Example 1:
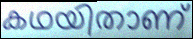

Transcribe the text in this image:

കഥയിതാണ്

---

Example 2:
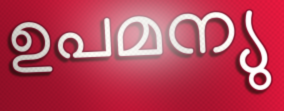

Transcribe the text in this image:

ഉപമന്യു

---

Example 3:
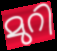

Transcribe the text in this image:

മുറി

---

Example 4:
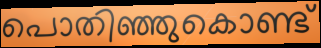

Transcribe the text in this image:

പൊതിഞ്ഞുകൊണ്ട്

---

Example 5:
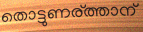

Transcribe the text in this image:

തൊട്ടുണര്ത്താന്